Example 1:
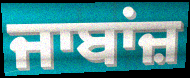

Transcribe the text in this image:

ਜਾਬਾਂਜ਼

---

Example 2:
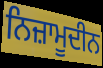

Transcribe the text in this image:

ਨਿਜ਼ਾਮੂਦੀਨ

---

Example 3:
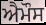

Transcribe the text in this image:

ਐਮੌਸ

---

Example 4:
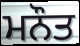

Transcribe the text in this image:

ਮਨੌਤ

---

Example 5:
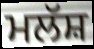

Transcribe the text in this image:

ਮਲੱਸ਼